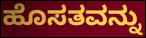
ಹೊಸತವನ್ನು